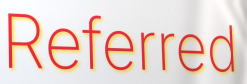
Referred